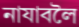
নাযাবলৈ